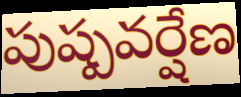
పుష్పవర్షేణ